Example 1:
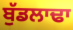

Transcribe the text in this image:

ਬੁੱਡਲਾਢਾ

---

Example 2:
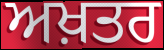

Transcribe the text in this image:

ਅਖ਼ਤਰ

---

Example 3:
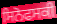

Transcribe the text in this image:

ਸਿਨੋਫਸਕੀ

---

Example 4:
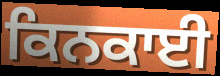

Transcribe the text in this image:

ਕਿਨਕਾਈ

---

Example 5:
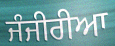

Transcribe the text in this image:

ਜੰਜੀਰੀਆ